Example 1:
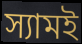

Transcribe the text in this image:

স্যামই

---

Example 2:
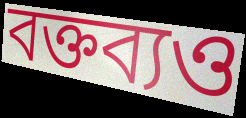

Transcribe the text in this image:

বক্তব্যও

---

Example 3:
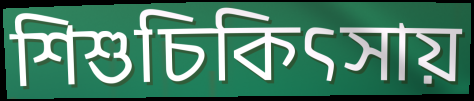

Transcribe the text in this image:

শিশুচিকিৎসায়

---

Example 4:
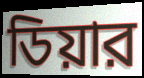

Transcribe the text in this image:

ডিয়ার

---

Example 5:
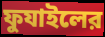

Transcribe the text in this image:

ফুযাইলের